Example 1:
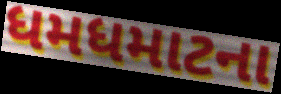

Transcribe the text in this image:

ધમધમાટના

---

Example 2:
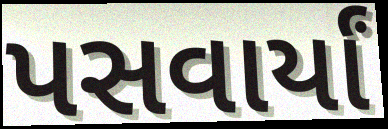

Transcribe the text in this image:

પસવાર્યાં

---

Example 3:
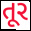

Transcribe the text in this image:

તૂર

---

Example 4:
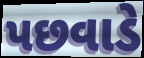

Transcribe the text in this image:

પછવાડે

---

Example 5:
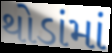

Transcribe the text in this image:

થોડાંમાં